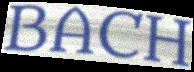
BACH